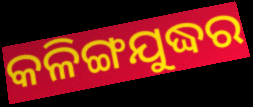
କଳିଙ୍ଗଯୁଦ୍ଧର